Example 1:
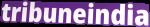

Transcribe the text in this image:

tribuneindia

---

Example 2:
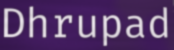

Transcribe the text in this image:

Dhrupad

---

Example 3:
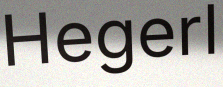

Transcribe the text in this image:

Hegerl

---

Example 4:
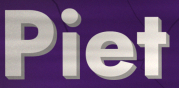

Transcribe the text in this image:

Piet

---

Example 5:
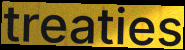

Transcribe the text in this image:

treaties